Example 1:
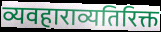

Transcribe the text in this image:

व्यवहाराव्यतिरिक्त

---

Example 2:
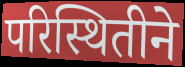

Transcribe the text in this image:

परिस्थितीने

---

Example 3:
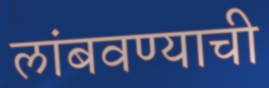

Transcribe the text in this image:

लांबवण्याची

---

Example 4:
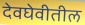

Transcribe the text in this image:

देवघेवीतील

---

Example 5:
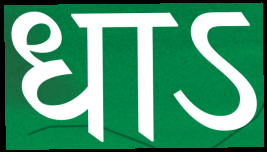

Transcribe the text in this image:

धाऽ